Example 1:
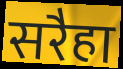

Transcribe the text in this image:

सरैहा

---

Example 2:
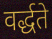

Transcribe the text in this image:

वर्द्धते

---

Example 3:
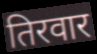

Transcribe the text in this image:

तिरवार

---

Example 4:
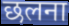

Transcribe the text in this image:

छलना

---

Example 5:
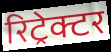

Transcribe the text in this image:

रिट्रेक्टर